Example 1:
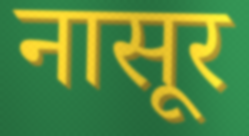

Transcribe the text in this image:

नासूर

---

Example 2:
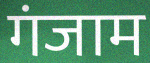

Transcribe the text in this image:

गंजाम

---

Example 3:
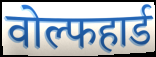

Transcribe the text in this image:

वोल्फहार्ड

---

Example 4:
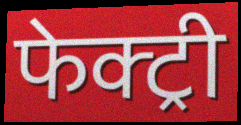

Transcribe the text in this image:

फेक्ट्री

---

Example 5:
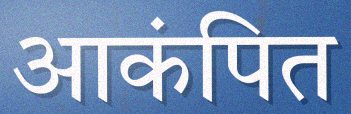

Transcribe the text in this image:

आकंपित